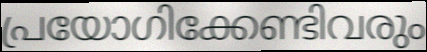
പ്രയോഗിക്കേണ്ടിവരും